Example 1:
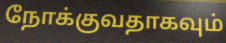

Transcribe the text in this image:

நோக்குவதாகவும்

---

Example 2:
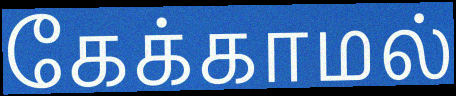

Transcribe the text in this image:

கேக்காமல்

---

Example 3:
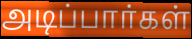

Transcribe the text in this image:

அடிப்பார்கள்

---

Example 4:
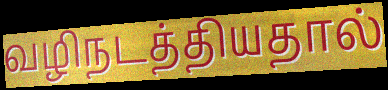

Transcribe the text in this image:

வழிநடத்தியதால்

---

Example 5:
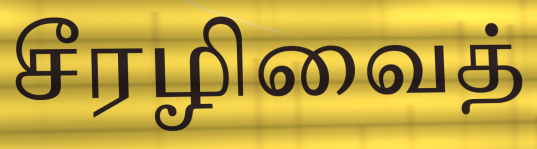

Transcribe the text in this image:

சீரழிவைத்